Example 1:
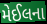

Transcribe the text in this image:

મેઈલના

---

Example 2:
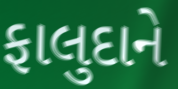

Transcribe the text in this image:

ફાલુદાને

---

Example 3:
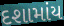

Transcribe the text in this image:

દશામાંય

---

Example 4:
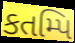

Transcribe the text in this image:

કતમ્પિ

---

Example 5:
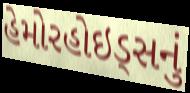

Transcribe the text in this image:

હેમોરહોઇડ્સનું